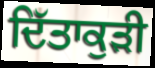
ਦਿੱਤਾਕੁੜੀ